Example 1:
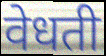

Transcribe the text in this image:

वेधती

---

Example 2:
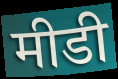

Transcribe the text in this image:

मीडी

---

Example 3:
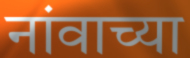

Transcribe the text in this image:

नांवाच्या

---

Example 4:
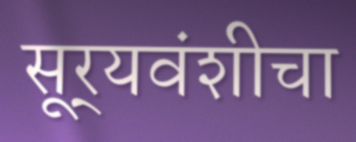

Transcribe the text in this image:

सूर्यवंशीचा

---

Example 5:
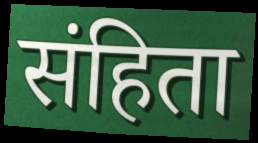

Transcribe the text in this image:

संहिता